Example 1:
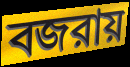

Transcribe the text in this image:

বজরায়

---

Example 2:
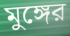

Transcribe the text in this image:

মুঙ্গের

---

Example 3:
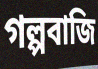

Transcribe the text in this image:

গল্পবাজি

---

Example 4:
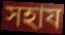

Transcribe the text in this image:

সহায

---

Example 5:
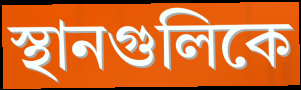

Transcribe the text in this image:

স্থানগুলিকে